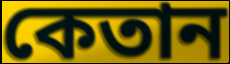
কেতান